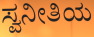
ಸ್ವನೀತಿಯ